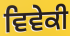
ਵਿਵੇਕੀ